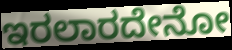
ಇರಲಾರದೇನೋ